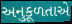
અનુકૂળતાએ